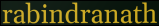
rabindranath